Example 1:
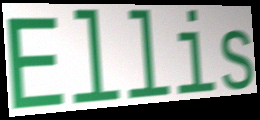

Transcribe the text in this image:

Ellis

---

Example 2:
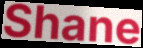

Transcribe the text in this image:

Shane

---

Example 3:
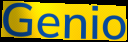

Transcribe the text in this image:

Genio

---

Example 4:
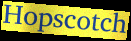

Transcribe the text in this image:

Hopscotch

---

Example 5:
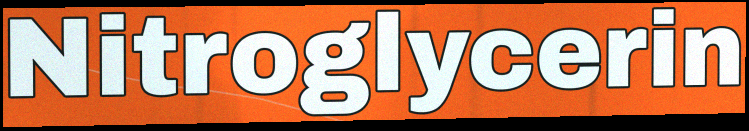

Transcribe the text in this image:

Nitroglycerin